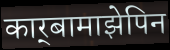
कार्बामाझेपिन